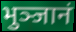
भुञ्जानं